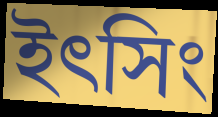
ইৎসিং